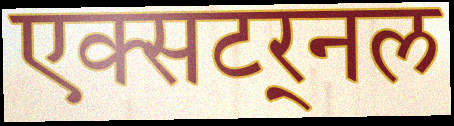
एक्सटर्नल